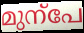
മുന്പേ